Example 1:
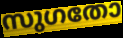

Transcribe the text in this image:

സുഗതോ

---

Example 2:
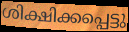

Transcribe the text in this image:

ശിക്ഷിക്കപ്പെട്ടു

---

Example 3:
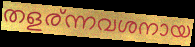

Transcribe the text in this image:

തളര്ന്നവശനായ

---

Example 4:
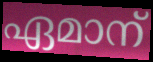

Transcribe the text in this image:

ഏമാന്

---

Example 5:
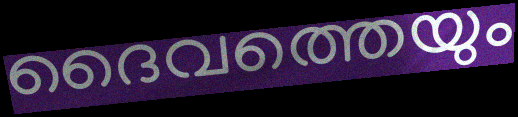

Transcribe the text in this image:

ദൈവത്തെയും